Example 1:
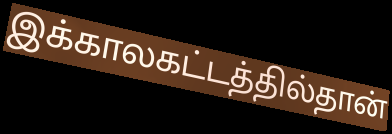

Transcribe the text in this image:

இக்காலகட்டத்தில்தான்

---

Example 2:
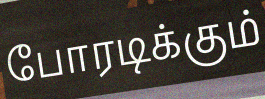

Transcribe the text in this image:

போரடிக்கும்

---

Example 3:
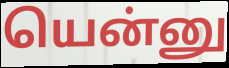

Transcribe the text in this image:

யென்னு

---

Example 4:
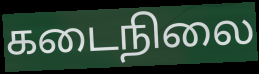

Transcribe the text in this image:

கடைநிலை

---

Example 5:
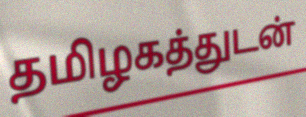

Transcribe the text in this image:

தமிழகத்துடன்